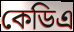
কেডিএ